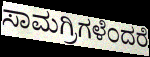
ಸಾಮಗ್ರಿಗಳೆಂದರೆ